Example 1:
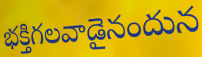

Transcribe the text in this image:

భక్తిగలవాడైనందున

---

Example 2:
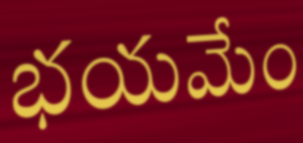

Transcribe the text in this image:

భయమేం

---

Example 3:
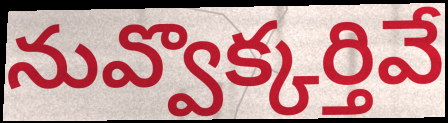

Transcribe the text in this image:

నువ్వొక్కర్తివే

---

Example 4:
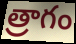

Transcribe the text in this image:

త్రాగం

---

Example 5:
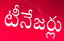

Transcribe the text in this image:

టీనేజర్లు